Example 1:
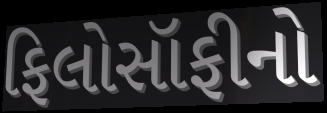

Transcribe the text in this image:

ફિલોસૉફીનો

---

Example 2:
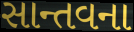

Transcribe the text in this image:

સાન્તવના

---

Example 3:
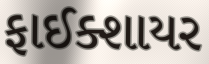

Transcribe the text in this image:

ફાઈક્શાયર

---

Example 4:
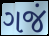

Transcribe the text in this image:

ગજં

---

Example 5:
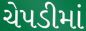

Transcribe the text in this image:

ચેપડીમાં